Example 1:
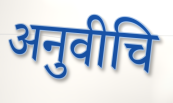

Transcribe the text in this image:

अनुवीचि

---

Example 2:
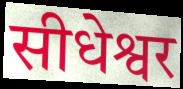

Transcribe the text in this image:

सीधेश्वर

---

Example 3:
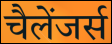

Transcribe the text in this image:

चैलेंजर्स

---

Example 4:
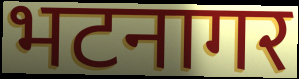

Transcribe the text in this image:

भटनागर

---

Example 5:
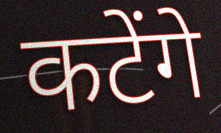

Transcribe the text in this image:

कटेंगे